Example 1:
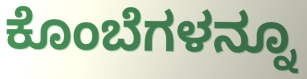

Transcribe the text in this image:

ಕೊಂಬೆಗಳನ್ನೂ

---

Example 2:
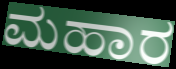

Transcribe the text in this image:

ಮಹಾರ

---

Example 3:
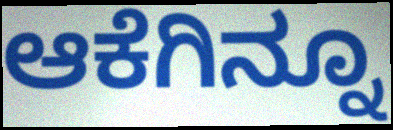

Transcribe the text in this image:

ಆಕೆಗಿನ್ನೂ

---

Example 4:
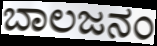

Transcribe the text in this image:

ಬಾಲಜನಂ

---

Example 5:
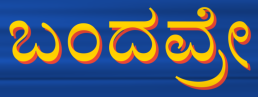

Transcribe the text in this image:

ಬಂದವ್ರೇ